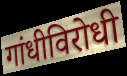
गांधीविरोधी